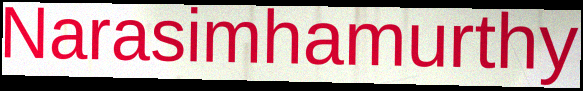
Narasimhamurthy